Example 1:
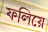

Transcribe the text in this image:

ফলিয়ে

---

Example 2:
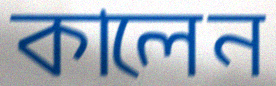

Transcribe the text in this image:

কালেন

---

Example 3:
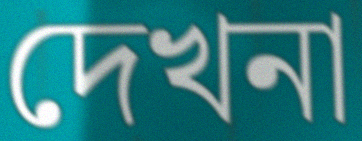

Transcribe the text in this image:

দেখনা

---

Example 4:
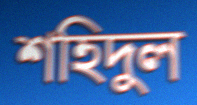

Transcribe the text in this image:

শহিদুল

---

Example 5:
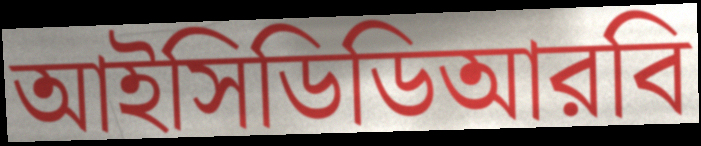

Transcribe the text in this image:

আইসিডিডিআরবি